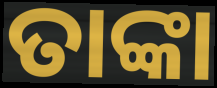
ତାଙ୍କା